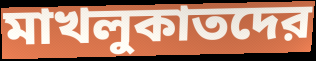
মাখলুকাতদের